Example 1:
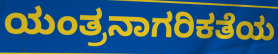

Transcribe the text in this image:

ಯಂತ್ರನಾಗರಿಕತೆಯ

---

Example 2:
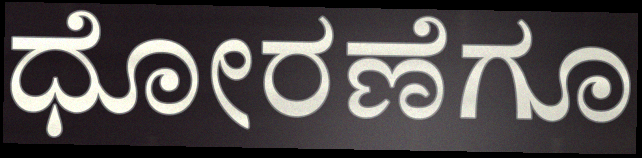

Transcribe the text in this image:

ಧೋರಣೆಗೂ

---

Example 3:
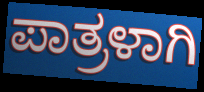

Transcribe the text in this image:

ಪಾತ್ರಳಾಗಿ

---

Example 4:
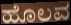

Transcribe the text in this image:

ಹೊಲವ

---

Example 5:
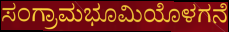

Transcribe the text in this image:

ಸಂಗ್ರಾಮಭೂಮಿಯೊಳಗನೆ